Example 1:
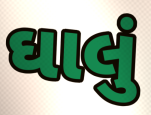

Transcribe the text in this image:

ઘાલું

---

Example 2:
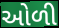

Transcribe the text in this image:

ઓળી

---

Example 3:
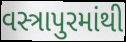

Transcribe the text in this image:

વસ્ત્રાપુરમાંથી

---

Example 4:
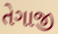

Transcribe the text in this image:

તેગાજી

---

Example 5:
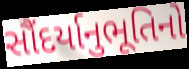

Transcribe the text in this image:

સૌંદર્યાનુભૂતિનો